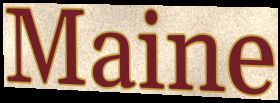
Maine